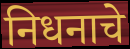
निधनाचे